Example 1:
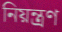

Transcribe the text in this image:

নিয়ন্ত্রণ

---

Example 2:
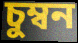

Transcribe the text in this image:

চুম্বন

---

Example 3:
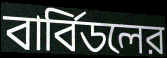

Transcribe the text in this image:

বার্বিডলের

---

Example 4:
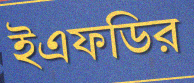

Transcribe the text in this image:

ইএফডির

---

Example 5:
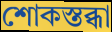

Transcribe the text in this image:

শোকস্তব্ধা